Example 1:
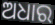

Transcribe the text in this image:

ଅଧାର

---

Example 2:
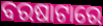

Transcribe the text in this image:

ବରଷାଟାରେ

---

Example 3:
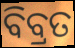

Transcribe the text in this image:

ବିବ୍ରତ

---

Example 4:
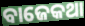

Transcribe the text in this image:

ବାଜେକଥା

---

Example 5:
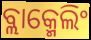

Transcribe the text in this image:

ବ୍ଲାକ୍ମେଲିଂ